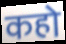
कहो